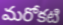
మరోకటి